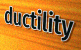
ductility